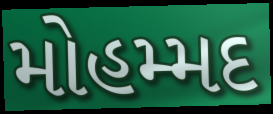
મોહમ્મદ